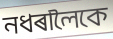
নধৰালৈকে